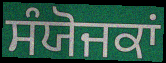
ਸੰਯੋਜਕਾਂ